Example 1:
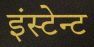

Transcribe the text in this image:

इंस्टेन्ट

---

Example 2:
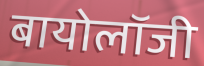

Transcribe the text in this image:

बायोलॉजी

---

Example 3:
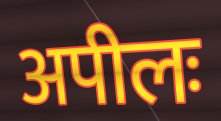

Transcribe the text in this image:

अपीलः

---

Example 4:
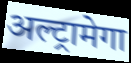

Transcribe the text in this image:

अल्ट्रामेगा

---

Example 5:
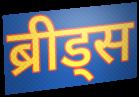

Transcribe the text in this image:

ब्रीड्स